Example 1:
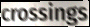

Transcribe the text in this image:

crossings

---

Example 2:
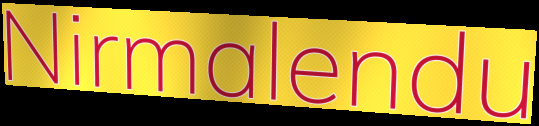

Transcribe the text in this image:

Nirmalendu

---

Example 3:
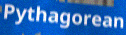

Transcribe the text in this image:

Pythagorean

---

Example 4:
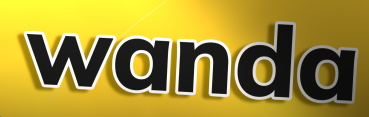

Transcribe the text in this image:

wanda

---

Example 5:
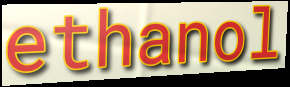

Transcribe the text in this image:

ethanol